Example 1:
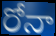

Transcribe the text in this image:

రోనా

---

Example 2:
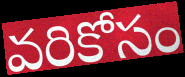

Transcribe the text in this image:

వరికోసం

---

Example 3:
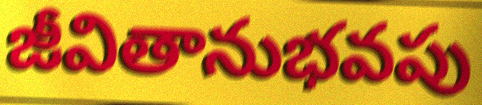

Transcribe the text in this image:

జీవితానుభవపు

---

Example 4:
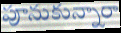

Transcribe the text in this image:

పూనుకున్నారా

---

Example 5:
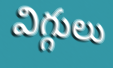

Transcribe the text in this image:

విగ్గులు